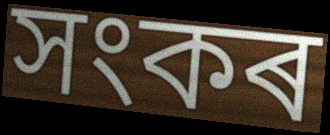
সংকৰ